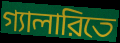
গ্যালারিতে